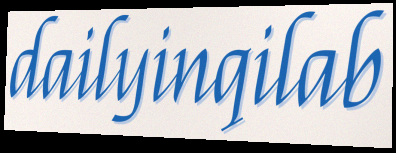
dailyinqilab